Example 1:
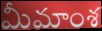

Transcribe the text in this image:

మీమాంశ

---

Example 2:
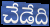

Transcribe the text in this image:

చేడేది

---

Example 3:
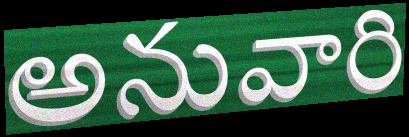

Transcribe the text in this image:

అనువారి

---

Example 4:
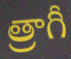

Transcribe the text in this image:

త్రాగీ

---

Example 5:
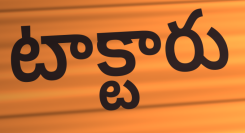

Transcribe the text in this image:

టాక్టారు